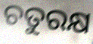
ଚତୁରକ୍ଷ